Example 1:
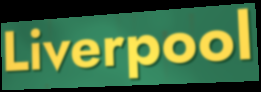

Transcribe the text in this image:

Liverpool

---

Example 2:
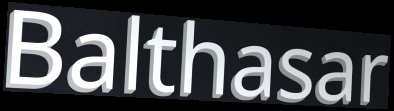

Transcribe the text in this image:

Balthasar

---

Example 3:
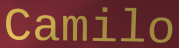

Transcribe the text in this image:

Camilo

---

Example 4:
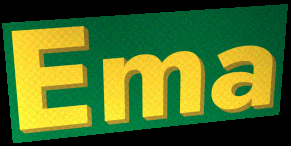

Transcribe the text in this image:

Ema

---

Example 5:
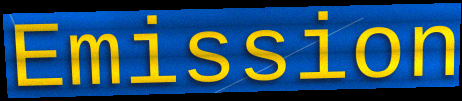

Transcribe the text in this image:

Emission